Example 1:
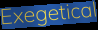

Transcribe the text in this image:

Exegetical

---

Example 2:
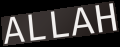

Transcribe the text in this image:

ALLAH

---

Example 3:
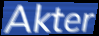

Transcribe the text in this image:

Akter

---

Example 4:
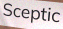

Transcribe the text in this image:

Sceptic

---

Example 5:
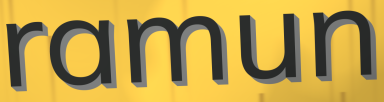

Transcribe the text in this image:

ramun